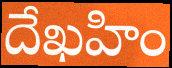
దేఖహిం